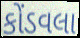
કોંડવલા